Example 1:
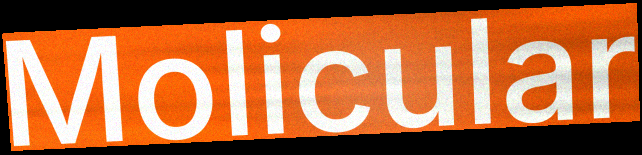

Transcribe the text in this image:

Molicular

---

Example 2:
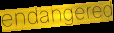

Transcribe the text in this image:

endangered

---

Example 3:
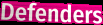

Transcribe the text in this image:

Defenders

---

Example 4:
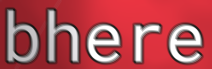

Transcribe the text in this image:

bhere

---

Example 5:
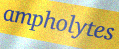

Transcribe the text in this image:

ampholytes